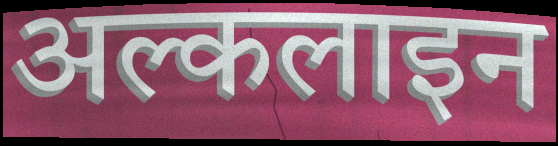
अल्कलाइन